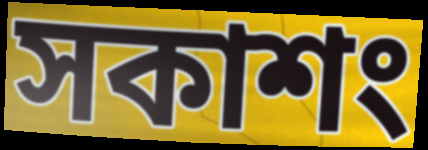
সকাশং